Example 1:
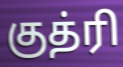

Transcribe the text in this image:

குத்ரி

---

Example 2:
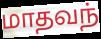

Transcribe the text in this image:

மாதவந்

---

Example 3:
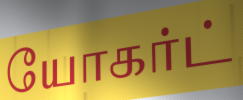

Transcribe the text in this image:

யோகர்ட்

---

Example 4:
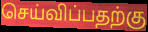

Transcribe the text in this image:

செய்விப்பதற்கு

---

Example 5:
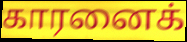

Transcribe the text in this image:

காரனைக்